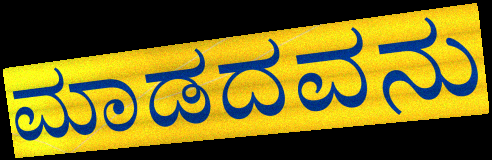
ಮಾಡದವನು